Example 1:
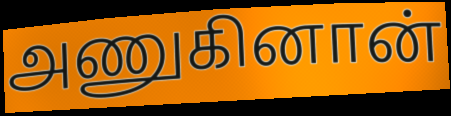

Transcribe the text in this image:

அணுகினான்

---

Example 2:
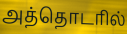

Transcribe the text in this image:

அத்தொடரில்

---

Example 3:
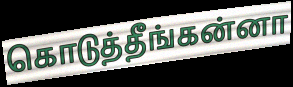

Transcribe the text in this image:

கொடுத்தீங்கன்னா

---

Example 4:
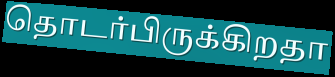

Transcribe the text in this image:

தொடர்பிருக்கிறதா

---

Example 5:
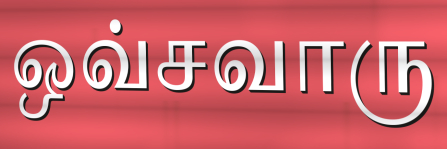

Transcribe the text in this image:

ஒவ்சவாரு